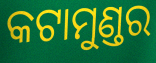
କଟାମୁଣ୍ଡର